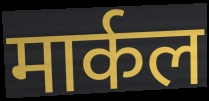
मार्कल